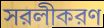
সরলীকরণ